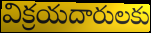
విక్రయదారులకు